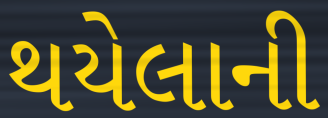
થયેલાની